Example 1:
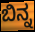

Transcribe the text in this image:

ಬಿನ್ನ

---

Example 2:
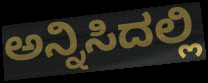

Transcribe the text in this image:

ಅನ್ನಿಸಿದಲ್ಲಿ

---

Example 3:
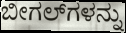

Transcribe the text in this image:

ಬೀಗಲ್‌ಗಳನ್ನು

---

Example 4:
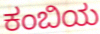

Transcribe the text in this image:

ಕಂಬಿಯ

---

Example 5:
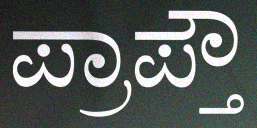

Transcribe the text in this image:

ಪ್ರಾಪ್ತೌ